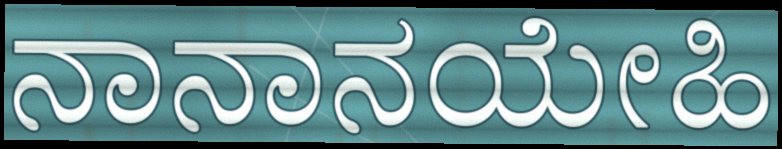
ನಾನಾನಯೇಹಿ